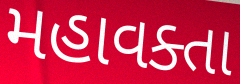
મહાવક્તા